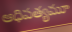
ఆధిపత్యమూ